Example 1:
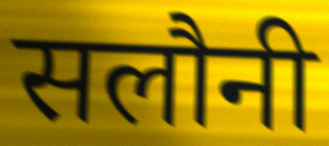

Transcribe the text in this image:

सलौनी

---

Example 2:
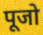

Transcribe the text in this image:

पूजो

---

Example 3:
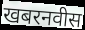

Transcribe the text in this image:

खबरनवीस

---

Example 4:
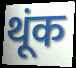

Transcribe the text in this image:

थूंक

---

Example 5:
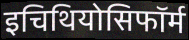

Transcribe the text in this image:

इचिथियोसिफॉर्म